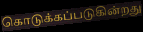
கொடுக்கப்படுகின்றது